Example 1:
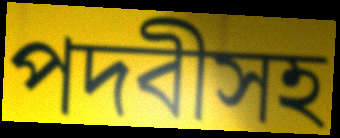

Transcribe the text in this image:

পদবীসহ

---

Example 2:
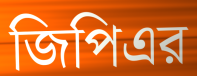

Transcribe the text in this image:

জিপিএর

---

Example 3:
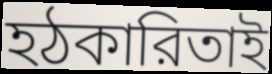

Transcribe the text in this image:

হঠকারিতাই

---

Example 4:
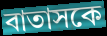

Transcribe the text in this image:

বাতাসকে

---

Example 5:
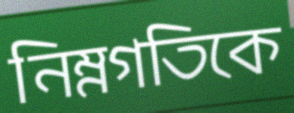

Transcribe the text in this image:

নিম্নগতিকে